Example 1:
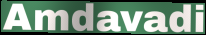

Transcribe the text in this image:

Amdavadi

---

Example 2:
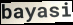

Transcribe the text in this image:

bayasi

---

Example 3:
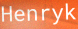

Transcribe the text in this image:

Henryk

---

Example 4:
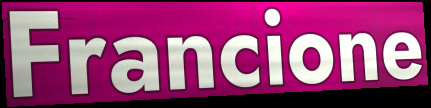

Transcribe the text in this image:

Francione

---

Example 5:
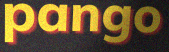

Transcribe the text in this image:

pango